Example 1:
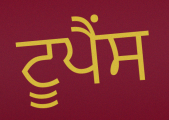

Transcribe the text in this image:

ਟੂਪੈਂਸ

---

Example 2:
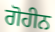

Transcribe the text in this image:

ਗੋਹੀਨ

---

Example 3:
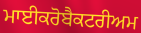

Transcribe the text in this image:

ਮਾਈਕਰੋਬੈਕਟਰੀਅਮ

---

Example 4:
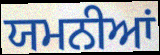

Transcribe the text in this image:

ਯਮਨੀਆਂ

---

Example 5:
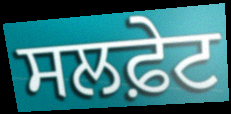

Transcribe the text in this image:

ਸਲਫ਼ੇਟ